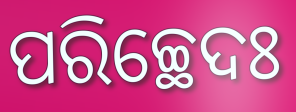
ପରିଚ୍ଛେଦଃ